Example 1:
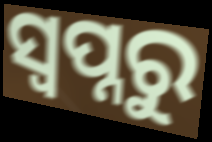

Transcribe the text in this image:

ସ୍ବପ୍ନରୁ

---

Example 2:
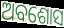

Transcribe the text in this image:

ଅବଶୋସ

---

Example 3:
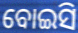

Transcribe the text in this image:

ବୋଇସି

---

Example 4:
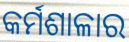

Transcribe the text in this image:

କର୍ମଶାଳାର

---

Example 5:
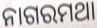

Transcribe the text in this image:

ନାଗରମଥା